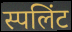
स्पलिंट